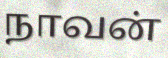
நாவன்